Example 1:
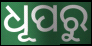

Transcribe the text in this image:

ଧୂପରୁ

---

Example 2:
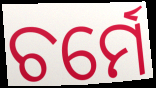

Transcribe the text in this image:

ଚର୍ମେ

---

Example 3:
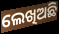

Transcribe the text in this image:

ଲେଖିଅଛି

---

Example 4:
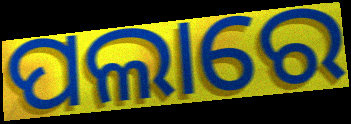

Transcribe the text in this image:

ପଲାରେ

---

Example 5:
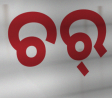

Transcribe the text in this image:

ଚର୍